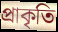
প্ৰাকৃতি